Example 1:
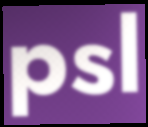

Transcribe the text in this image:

psl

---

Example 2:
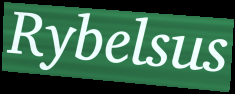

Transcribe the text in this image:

Rybelsus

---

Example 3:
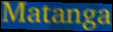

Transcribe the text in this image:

Matanga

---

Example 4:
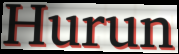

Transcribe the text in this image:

Hurun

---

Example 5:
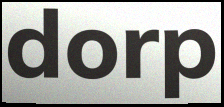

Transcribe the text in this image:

dorp